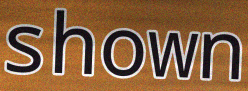
shown